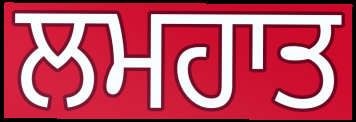
ਲਮਹਾਤ